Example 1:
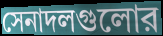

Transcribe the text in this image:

সেনাদলগুলোর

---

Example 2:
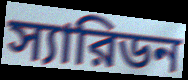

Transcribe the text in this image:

স্যারিডন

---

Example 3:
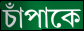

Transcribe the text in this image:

চাঁপাকে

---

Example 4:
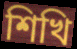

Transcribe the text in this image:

শিখি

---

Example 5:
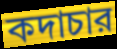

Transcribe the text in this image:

কদাচার